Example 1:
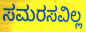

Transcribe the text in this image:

ಸಮರಸವಿಲ್ಲ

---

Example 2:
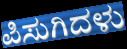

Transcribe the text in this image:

ಪಿಸುಗಿದಳು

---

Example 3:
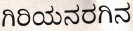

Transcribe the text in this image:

ಗಿರಿಯನರಗಿನ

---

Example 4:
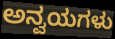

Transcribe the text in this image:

ಅನ್ವಯಗಳು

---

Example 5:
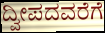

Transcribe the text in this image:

ದ್ವೀಪದವರೆಗೆ